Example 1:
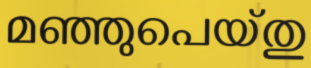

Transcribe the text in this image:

മഞ്ഞുപെയ്തു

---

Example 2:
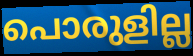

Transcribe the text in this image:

പൊരുളില്ല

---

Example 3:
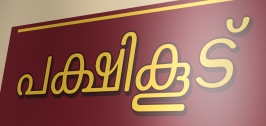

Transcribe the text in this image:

പക്ഷികൂട്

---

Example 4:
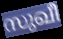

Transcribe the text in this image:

സുഖീ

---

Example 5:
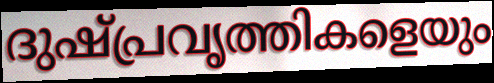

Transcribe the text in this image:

ദുഷ്പ്രവൃത്തികളെയും